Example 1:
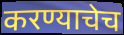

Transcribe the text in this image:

करण्याचेच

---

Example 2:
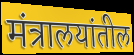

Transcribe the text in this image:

मंत्रालयांतील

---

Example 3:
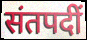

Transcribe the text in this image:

संतपदीं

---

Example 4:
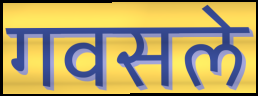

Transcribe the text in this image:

गवसले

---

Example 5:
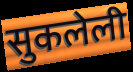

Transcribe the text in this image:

सुकलेली